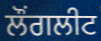
ਲੌਂਗਲੀਟ